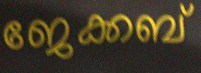
ജേക്കബ്